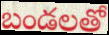
బండలతో